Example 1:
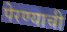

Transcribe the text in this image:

पेरण्याची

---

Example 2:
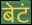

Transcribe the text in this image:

बेटं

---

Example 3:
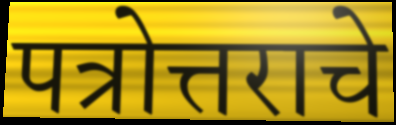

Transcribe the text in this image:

पत्रोत्तराचे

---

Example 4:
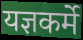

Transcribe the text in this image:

यज्ञकर्मे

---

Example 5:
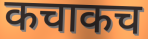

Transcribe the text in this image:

कचाकच